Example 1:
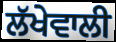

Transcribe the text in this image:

ਲੱਖੇਵਾਲੀ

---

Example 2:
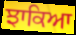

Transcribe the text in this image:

ਝਾਕਿਆ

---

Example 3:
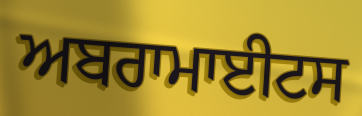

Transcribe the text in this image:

ਅਬਰਾਮਾਈਟਸ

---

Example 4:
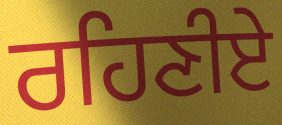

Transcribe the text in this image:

ਰਹਿਣੀਏ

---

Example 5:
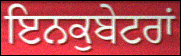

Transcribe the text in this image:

ਇਨਕੁਬੇਟਰਾਂ